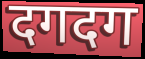
दगदग